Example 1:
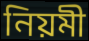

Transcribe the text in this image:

নিয়মী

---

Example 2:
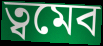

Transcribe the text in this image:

ত্বমেব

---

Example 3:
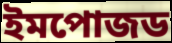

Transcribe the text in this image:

ইমপোজড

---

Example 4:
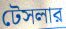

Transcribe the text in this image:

টেসলার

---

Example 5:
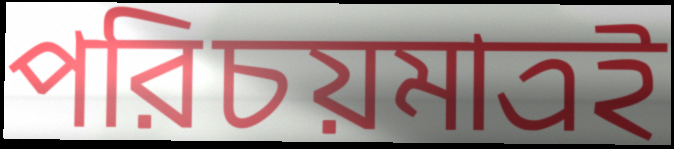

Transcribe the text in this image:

পরিচয়মাত্রই